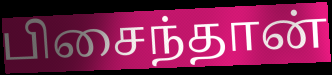
பிசைந்தான்